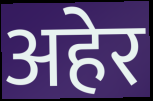
अहेर